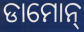
ଡାମୋନ୍